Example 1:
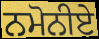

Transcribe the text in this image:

ਨਮੋਨੀਏ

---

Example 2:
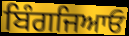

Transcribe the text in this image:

ਬਿੰਗਜਿਆਓ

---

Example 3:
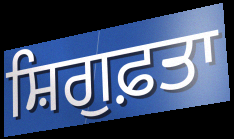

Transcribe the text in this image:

ਸ਼ਿਗੁਫ਼ਤਾ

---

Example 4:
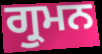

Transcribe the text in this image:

ਗ੍ਰੁਮਨ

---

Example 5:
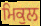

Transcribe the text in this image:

ਮਿਕੁਲ